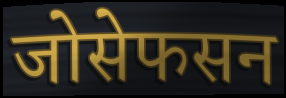
जोसेफसन